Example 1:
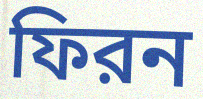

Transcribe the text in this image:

ফিরন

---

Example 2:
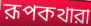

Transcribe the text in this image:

রূপকথারা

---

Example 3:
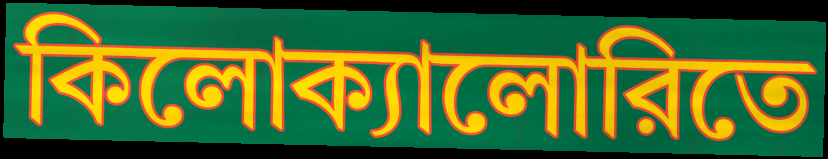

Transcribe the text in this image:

কিলোক্যালোরিতে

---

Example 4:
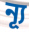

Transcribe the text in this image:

ন্যূ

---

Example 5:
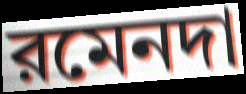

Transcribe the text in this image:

রমেনদা